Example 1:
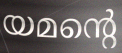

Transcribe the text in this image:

യമന്റെ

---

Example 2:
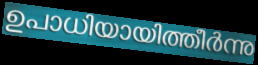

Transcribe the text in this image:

ഉപാധിയായിത്തീർന്നു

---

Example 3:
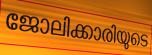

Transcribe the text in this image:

ജോലിക്കാരിയുടെ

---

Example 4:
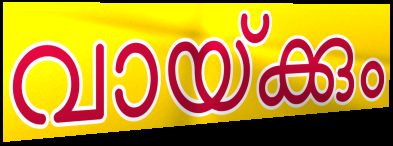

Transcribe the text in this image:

വായ്‌ക്കും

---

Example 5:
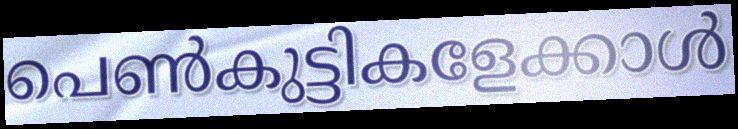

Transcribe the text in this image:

പെൺകുട്ടികളേക്കാൾ